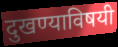
दुखण्याविषयी